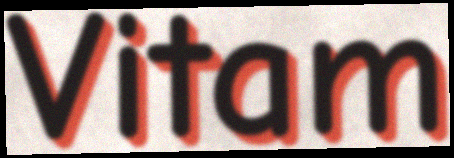
Vitam